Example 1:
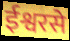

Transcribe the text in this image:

ईश्वरसे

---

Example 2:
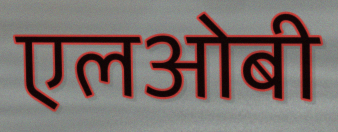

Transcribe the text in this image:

एलओबी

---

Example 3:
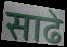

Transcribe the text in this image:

साढे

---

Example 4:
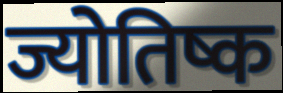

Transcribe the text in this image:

ज्योतिष्क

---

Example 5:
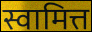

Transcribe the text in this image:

स्वामित्त